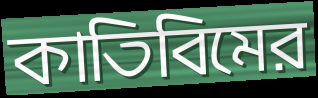
কাতিবিমের